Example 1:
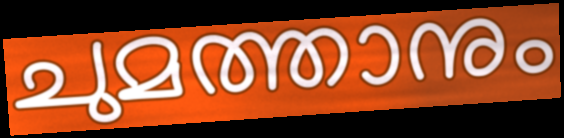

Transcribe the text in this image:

ചുമത്താനും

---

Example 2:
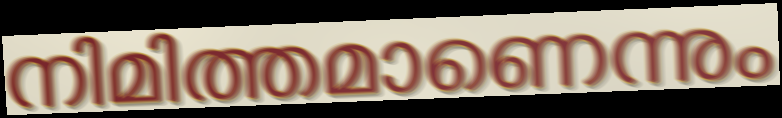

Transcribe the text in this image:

നിമിത്തമാണെന്നും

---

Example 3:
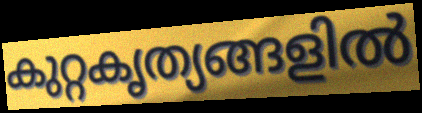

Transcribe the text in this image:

കുറ്റകൃത്യങ്ങളിൽ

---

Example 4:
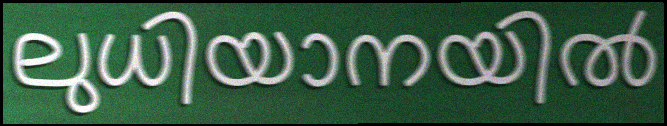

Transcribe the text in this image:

ലുധിയാനയിൽ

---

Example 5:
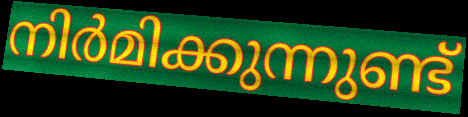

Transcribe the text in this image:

നിർമിക്കുന്നുണ്ട്